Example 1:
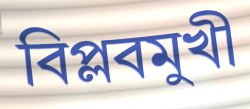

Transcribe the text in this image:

বিপ্লবমুখী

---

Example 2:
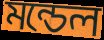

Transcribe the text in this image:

মন্ডেল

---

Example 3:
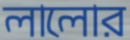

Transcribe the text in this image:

লালোর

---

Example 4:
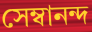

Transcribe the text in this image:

সেম্বানন্দ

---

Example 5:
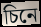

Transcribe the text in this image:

চিনে